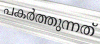
പകർത്തുന്നത്